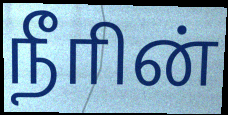
நீரின்